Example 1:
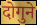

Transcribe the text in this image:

दोगुने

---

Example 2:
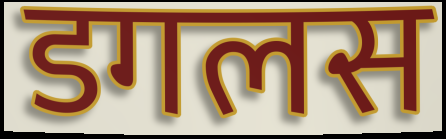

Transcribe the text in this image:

डगलस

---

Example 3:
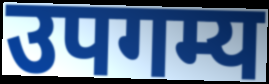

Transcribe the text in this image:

उपगम्य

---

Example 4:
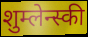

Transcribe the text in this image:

शुम्लेन्स्की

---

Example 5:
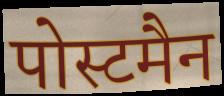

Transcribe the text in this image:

पोस्टमैन